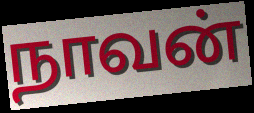
நாவன்